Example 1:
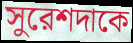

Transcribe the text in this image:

সুরেশদাকে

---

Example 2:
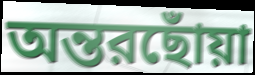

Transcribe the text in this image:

অন্তরছোঁয়া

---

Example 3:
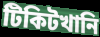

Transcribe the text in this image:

টিকিটখানি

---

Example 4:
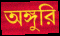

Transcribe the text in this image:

অঙ্গুরি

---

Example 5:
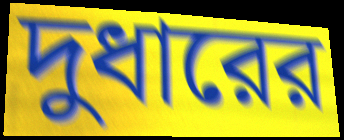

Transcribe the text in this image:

দুধারের